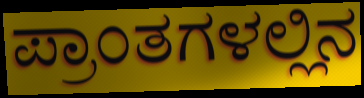
ಪ್ರಾಂತಗಳಲ್ಲಿನ